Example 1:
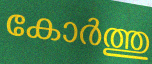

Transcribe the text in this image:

കോർത്തു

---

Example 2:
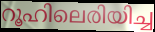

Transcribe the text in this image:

റൂഹിലെരിയിച്ച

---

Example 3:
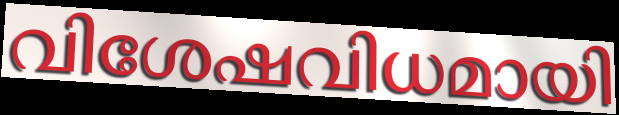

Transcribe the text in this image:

വിശേഷവിധമായി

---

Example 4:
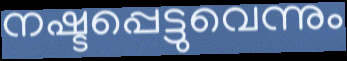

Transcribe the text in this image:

നഷ്ടപ്പെട്ടുവെന്നും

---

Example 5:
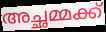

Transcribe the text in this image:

അച്ഛമ്മക്ക്